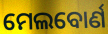
ମେଲବୋର୍ଣ